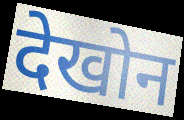
देखोन